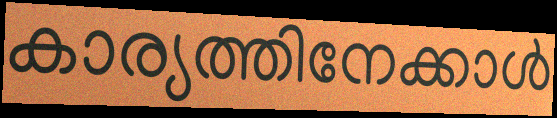
കാര്യത്തിനേക്കാൾ